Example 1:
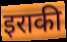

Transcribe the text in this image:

इराकी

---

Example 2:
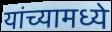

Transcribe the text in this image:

यांच्यामध्ये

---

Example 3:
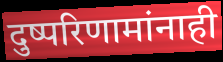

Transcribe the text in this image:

दुष्परिणामांनाही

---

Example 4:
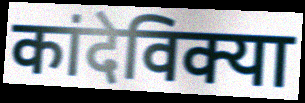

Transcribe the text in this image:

कांदेविक्या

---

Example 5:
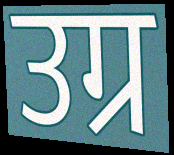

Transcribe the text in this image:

उग्र